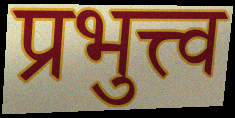
प्रभुत्त्व